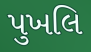
પુખલિ